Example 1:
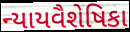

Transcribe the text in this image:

ન્યાયવૈશેષિકા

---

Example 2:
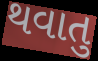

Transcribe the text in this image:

થવાતુ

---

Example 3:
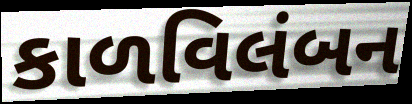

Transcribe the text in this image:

કાળવિલંબન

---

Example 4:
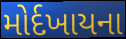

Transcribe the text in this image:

મોર્દખાયના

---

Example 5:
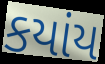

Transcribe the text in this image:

કયાંય